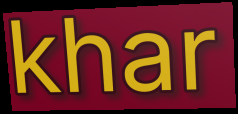
khar